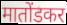
मातोंडकर